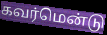
கவர்மென்டு